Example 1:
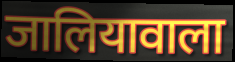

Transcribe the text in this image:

जालियावाला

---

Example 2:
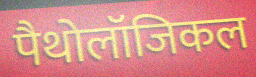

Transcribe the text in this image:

पैथोलॉजिकल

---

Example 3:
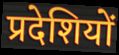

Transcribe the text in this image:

प्रदेशियों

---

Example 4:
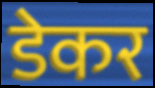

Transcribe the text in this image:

डेकर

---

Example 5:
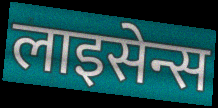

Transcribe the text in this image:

लाइसेन्स